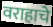
वराहाचे